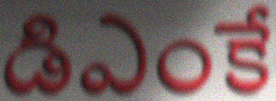
డిఎంకే